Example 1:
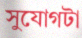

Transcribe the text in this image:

সুযোগটা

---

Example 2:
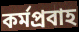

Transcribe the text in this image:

কর্মপ্রবাহ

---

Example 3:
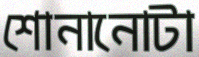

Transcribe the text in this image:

শোনানোটা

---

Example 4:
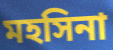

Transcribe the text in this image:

মহসিনা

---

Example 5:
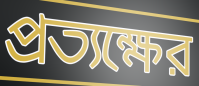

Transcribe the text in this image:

প্রত্যক্ষের